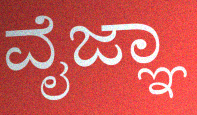
ವೈಜ್ಞಾ